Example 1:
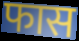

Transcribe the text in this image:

फास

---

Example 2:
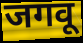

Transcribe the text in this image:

जगवू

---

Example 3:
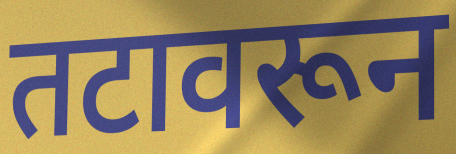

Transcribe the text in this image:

तटावरून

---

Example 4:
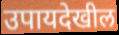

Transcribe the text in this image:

उपायदेखील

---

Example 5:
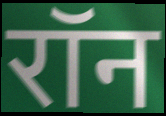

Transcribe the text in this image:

रॉन